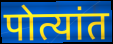
पोत्यांत